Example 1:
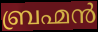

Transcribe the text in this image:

ബ്രഹ്മൻ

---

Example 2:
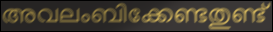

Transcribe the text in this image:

അവലംബിക്കേണ്ടതുണ്ട്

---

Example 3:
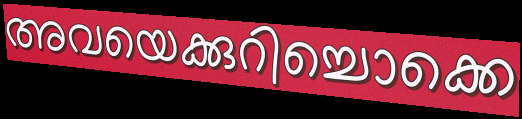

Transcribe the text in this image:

അവയെക്കുറിച്ചൊക്കെ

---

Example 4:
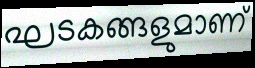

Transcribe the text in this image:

ഘടകങ്ങളുമാണ്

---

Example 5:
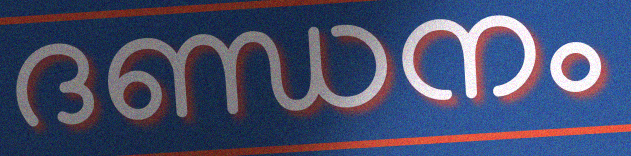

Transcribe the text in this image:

ദണ്ഡനം